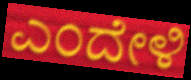
ಎಂದೇಳಿ